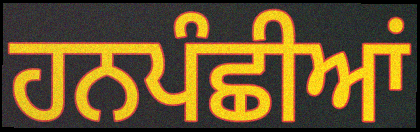
ਹਨਪੰਛੀਆਂ